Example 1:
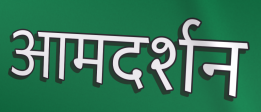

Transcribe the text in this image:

आमदर्शन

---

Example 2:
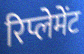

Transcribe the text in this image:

रिप्लेमेंट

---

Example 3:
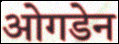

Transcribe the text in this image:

ओगडेन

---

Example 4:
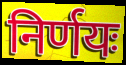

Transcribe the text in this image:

निर्णयः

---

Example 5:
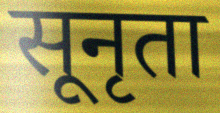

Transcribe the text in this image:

सूनृता